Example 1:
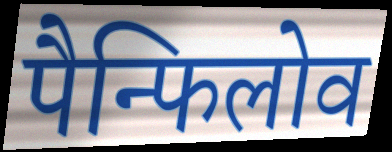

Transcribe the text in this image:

पैन्फिलोव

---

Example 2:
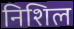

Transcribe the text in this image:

निशिल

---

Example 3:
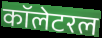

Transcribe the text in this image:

कॉलेटरल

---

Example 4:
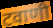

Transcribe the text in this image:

टवाणी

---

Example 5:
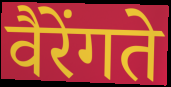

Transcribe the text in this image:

वैरेंगते